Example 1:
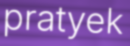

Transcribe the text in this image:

pratyek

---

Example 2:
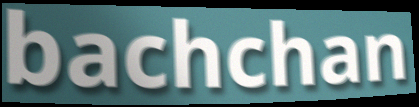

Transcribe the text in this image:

bachchan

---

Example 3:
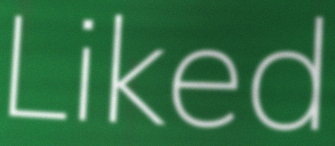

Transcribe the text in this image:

Liked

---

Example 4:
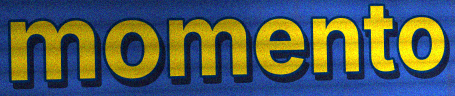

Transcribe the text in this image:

momento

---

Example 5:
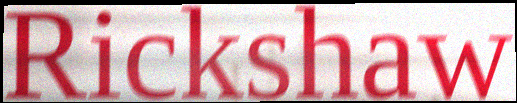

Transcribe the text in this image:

Rickshaw